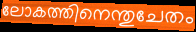
ലോകത്തിനെന്തുചേതം